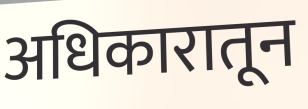
अधिकारातून